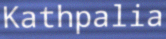
Kathpalia